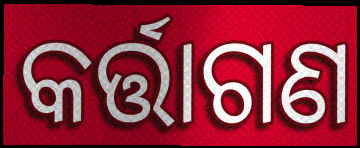
କର୍ତ୍ତାଗଣ